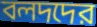
বলদদের